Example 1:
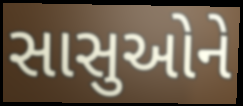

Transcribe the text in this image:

સાસુઓને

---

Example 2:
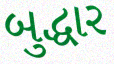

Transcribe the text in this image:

બુદ્ધાર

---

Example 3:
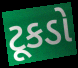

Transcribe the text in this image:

ટૂકડો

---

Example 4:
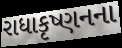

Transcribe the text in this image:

રાધાકૃષ્ણનના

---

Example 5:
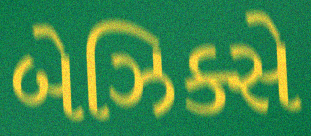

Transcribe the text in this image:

બેઝિક્સે